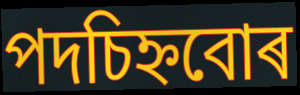
পদচিহ্নবোৰ